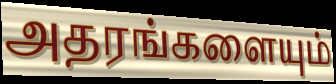
அதரங்களையும்